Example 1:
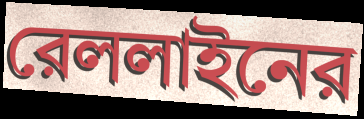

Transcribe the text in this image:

রেললাইনের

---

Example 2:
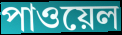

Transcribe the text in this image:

পাওয়েল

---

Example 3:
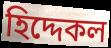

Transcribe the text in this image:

হিদ্দেকল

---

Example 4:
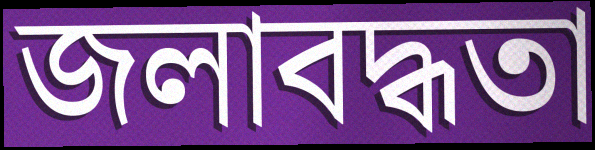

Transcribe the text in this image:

জলাবদ্ধতা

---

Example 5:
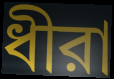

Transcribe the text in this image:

ধীরা